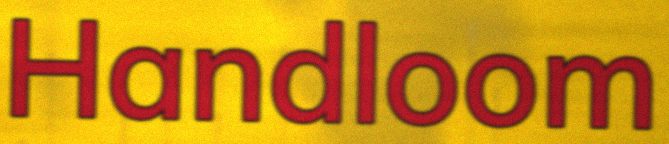
Handloom